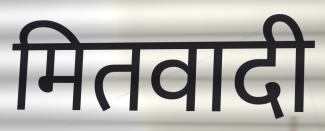
मितवादी